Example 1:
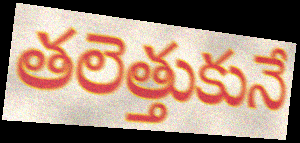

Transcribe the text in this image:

తలెత్తుకునే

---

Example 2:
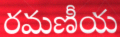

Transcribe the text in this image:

రమణీయ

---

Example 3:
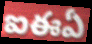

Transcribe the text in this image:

ఐఈఏ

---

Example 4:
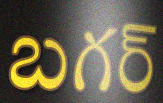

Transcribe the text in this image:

బగర్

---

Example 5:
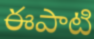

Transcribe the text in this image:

ఈపాటి